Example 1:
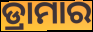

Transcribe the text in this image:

ଡ୍ରାମାର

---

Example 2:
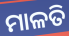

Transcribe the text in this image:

ମାଳତି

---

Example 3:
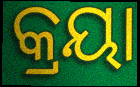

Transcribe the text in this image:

କ୍ରୟା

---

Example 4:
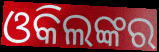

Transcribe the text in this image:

ଓକିଲଙ୍କର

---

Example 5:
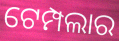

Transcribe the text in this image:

ଟେମ୍ପଲାର